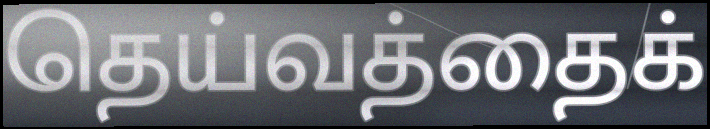
தெய்வத்தைக்